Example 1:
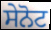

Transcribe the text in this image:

ਸੇਨੋਟ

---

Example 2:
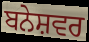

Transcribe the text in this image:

ਬਨੇਸ਼ਵਰ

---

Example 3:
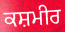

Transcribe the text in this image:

ਕਸ਼ਮੀਰ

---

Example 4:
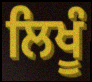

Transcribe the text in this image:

ਲਿਖੂੰ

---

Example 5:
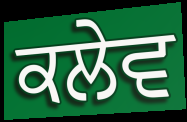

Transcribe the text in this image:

ਕਲੇਵ